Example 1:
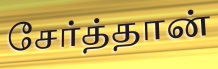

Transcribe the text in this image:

சேர்த்தான்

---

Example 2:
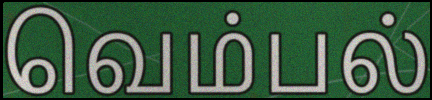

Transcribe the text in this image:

வெம்பல்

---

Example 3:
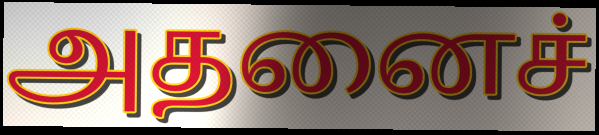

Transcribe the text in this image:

அதனைச்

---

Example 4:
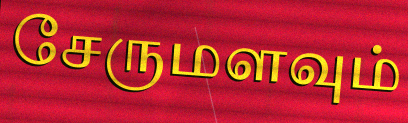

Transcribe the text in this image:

சேருமளவும்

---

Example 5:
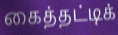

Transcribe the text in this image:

கைத்தட்டிக்